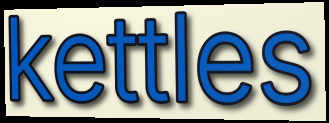
kettles